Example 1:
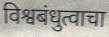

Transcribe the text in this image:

विश्वबंधुत्वाचा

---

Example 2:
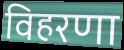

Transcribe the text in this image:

विहरणा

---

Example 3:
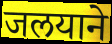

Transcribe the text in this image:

जलयाने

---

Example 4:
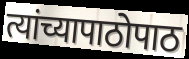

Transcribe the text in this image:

त्यांच्यापाठोपाठ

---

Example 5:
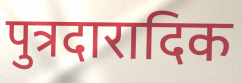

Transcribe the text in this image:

पुत्रदारादिक